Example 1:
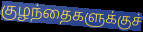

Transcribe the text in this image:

குழந்தைகளுக்குச்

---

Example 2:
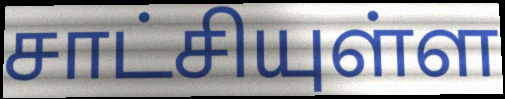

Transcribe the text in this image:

சாட்சியுள்ள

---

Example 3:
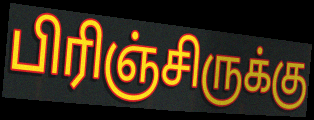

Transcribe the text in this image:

பிரிஞ்சிருக்கு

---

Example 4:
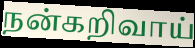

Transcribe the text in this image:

நன்கறிவாய்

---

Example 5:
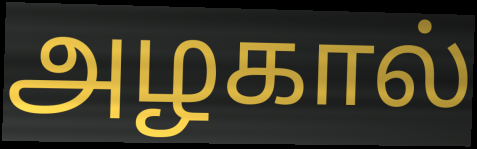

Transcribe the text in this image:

அழகால்